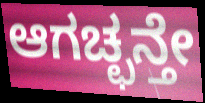
ಆಗಚ್ಛನ್ತೇ